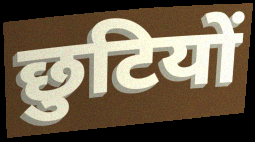
छुटियों